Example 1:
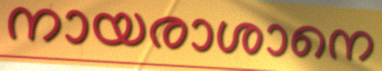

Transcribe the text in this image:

നായരാശാനെ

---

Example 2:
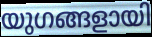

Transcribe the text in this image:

യുഗങ്ങളായി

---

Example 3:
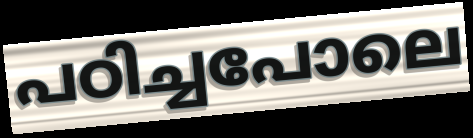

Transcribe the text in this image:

പഠിച്ചപോലെ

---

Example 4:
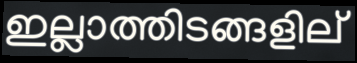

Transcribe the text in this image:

ഇല്ലാത്തിടങ്ങളില്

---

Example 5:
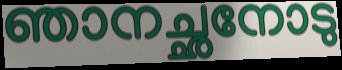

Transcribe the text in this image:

ഞാനച്ഛനോടു